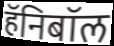
हॅनिबॉल